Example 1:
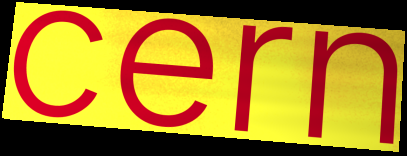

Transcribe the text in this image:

cern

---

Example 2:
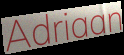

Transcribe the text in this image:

Adriaan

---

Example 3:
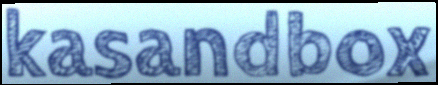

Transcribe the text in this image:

kasandbox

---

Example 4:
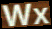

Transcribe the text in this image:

Wx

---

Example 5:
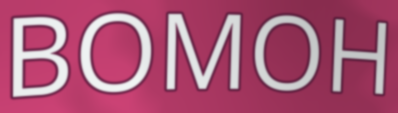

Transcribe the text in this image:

BOMOH